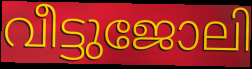
വീട്ടുജോലി